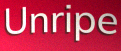
Unripe